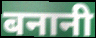
बनानी